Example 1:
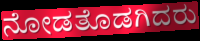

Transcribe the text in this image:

ನೋಡತೊಡಗಿದರು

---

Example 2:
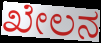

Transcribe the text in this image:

ಖೇಲನ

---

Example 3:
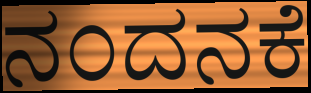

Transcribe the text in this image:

ನಂದನಕೆ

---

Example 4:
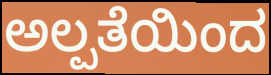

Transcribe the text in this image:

ಅಲ್ಪತೆಯಿಂದ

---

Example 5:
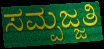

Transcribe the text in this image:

ಸಮ್ಪಜ್ಜತಿ